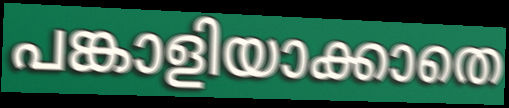
പങ്കാളിയാക്കാതെ